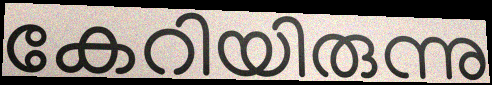
കേറിയിരുന്നു